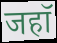
जहॉ